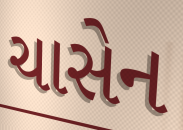
ચાસેન